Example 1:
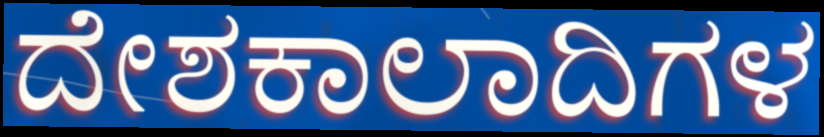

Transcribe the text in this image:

ದೇಶಕಾಲಾದಿಗಳ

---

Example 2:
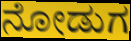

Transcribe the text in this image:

ನೋಡುಗ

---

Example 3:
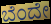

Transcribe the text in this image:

ಬೆಂದೇ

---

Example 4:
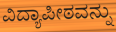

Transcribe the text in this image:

ವಿದ್ಯಾಪೀಠವನ್ನು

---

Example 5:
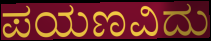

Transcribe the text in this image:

ಪಯಣವಿದು